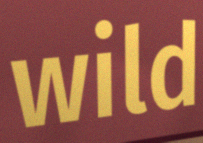
wild